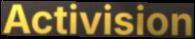
Activision